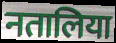
नतालिया